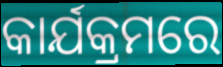
କାର୍ଯକ୍ରମରେ